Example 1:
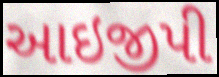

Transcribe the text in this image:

આઇજીપી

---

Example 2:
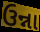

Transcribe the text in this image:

ઉન્ના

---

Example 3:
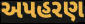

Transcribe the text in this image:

અપહરણ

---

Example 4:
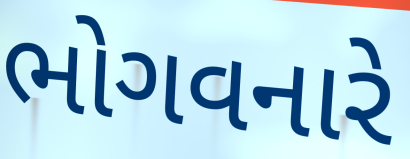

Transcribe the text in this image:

ભોગવનારે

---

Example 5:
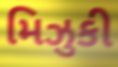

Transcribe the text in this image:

મિઝુકી